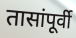
तासांपूर्वी